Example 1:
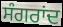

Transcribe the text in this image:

ਸੰਗਰਾਂਦ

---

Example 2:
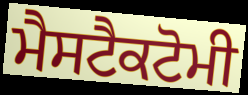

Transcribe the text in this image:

ਮੈਸਟੈਕਟੋਮੀ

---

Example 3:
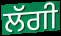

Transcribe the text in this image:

ਲੱਗੀ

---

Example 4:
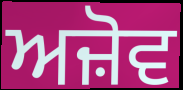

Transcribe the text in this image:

ਅਜ਼ੋਵ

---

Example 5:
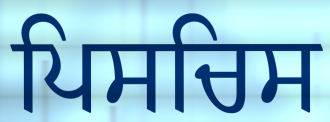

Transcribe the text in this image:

ਪਿਸਚਿਸ